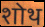
शोथ